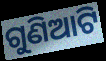
ଗୁଣିଆଟି